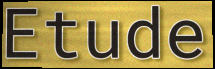
Etude